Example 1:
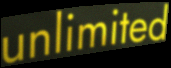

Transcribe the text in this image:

unlimited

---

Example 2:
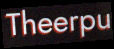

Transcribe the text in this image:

Theerpu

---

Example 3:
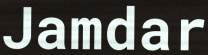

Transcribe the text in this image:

Jamdar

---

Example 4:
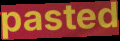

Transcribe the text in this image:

pasted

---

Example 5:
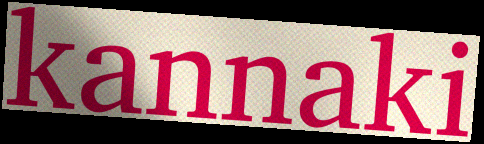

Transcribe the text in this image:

kannaki